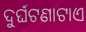
ଦୁର୍ଘଟଣାଟାଏ